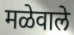
मळेवाले